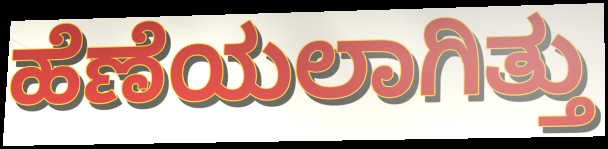
ಹೆಣೆಯಲಾಗಿತ್ತು